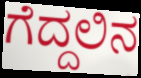
ಗೆದ್ದಲಿನ